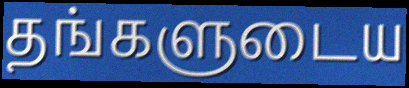
தங்களுடைய